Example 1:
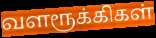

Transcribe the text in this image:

வளரூக்கிகள்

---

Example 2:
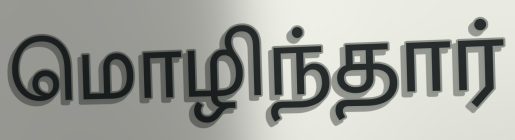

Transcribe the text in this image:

மொழிந்தார்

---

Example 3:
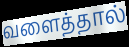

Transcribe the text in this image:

வளைத்தால்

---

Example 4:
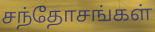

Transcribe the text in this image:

சந்தோசங்கள்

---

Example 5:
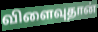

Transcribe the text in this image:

விளைவுதான்